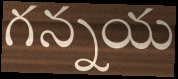
గన్నయ